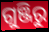
ଗୁଞ୍ଜିରୁ